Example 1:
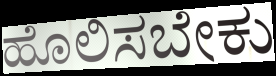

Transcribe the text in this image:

ಹೊಲಿಸಬೇಕು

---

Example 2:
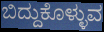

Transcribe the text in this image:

ಬಿದ್ದುಕೊಳ್ಳುವ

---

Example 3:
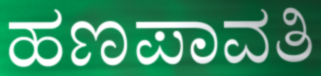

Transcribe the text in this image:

ಹಣಪಾವತಿ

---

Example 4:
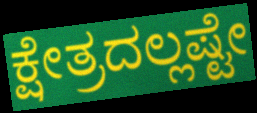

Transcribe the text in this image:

ಕ್ಷೇತ್ರದಲ್ಲಷ್ಟೇ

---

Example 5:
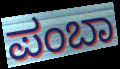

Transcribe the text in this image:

ಪಂಬಾ